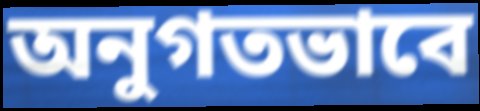
অনুগতভাবে